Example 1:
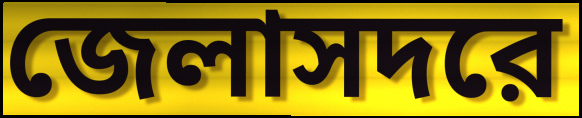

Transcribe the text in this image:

জেলাসদরে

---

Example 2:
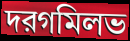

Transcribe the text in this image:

দরগমিলভ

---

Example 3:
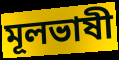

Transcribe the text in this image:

মূলভাষী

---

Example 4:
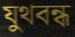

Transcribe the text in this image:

যুথবন্ধ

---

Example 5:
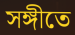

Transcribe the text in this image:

সঙ্গীতে